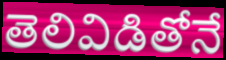
తెలివిడితోనే